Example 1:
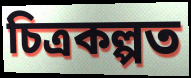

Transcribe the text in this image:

চিত্ৰকল্পত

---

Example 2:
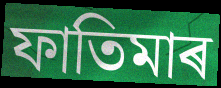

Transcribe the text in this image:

ফাতিমাৰ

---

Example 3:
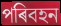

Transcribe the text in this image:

পৰিবহন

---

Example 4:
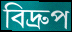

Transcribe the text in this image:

বিদ্ৰুপ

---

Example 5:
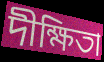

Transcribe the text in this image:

দীক্ষিতা